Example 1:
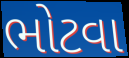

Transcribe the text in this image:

ભોટવા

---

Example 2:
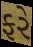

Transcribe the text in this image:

ફરે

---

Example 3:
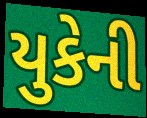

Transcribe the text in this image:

યુકેની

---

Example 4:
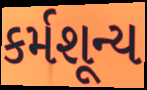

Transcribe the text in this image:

કર્મશૂન્ય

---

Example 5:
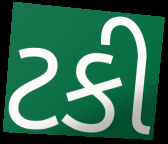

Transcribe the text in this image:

ટકી